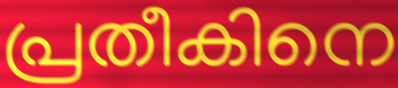
പ്രതീകിനെ